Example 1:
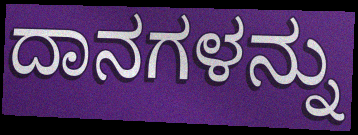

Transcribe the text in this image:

ದಾನಗಳನ್ನು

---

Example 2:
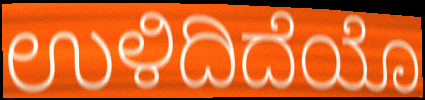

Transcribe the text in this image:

ಉಳಿದಿದೆಯೊ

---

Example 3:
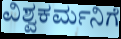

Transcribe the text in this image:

ವಿಶ್ವಕರ್ಮನಿಗೆ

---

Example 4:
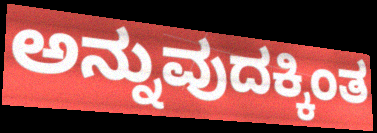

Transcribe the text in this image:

ಅನ್ನುವುದಕ್ಕಿಂತ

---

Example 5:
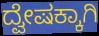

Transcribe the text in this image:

ದ್ವೇಷಕ್ಕಾಗಿ